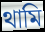
থামি